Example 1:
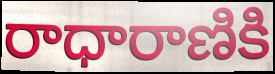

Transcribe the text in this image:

రాధారాణికి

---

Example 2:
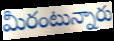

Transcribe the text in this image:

మీరంటున్నారు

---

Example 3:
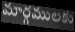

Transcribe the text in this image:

మార్గములకు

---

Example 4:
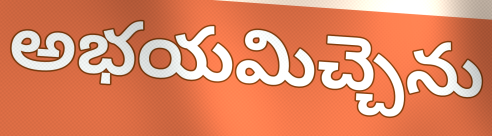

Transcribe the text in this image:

అభయమిచ్చెను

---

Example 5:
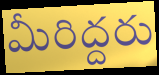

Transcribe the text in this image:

మీరిద్దరు